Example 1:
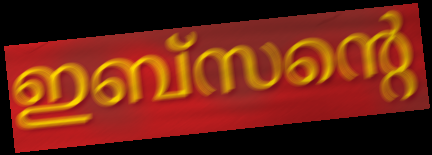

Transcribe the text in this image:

ഇബ്സന്റെ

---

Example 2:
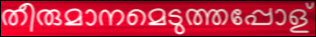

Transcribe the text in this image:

തീരുമാനമെടുത്തപ്പോള്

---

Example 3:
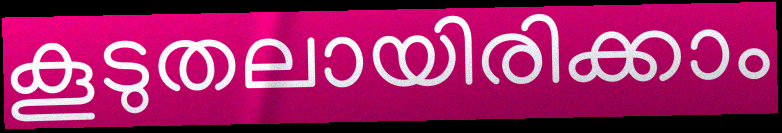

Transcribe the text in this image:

കൂടുതലായിരിക്കാം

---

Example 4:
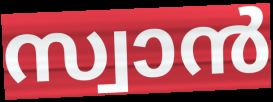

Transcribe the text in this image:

സ്വാൻ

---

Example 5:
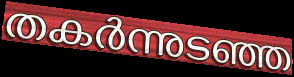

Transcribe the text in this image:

തകർന്നുടഞ്ഞ